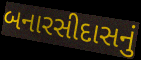
બનારસીદાસનું